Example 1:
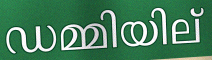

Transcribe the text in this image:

ഡമ്മിയില്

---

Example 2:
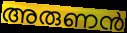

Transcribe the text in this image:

അരുണൻ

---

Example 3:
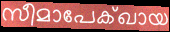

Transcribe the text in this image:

സീമാപേക്ഖായ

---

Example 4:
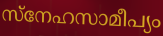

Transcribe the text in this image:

സ്നേഹസാമീപ്യം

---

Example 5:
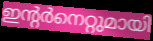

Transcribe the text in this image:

ഇന്റർനെറ്റുമായി